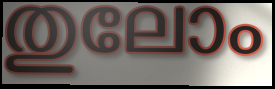
തുലോം